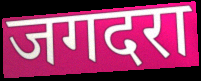
जगदरा